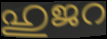
ഹുജറ